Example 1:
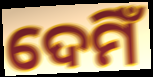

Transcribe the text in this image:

ଦେମିଁ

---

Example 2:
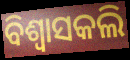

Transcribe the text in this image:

ବିଶ୍ଵାସକଲି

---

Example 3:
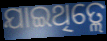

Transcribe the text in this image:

ଯାଇଥିତ୍ଲେ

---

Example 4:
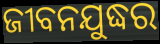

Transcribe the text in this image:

ଜୀବନଯୁଦ୍ଧର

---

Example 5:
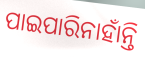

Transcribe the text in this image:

ପାଇପାରିନାହାଁନ୍ତି